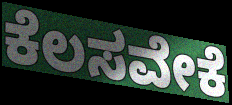
ಕೆಲಸವೇಕೆ